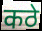
कठे